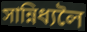
সান্নিধ্যলৈ